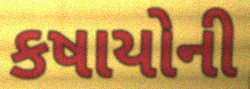
કષાયોની